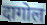
दागोल